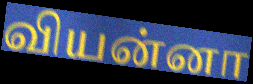
வியன்னா